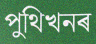
পুথিখনৰ